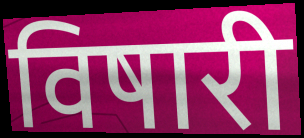
विषारी